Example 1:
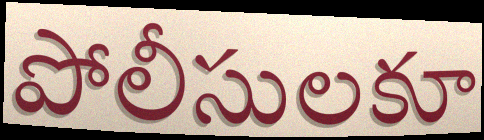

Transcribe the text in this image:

పోలీసులకూ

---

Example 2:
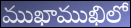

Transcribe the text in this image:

ముఖాముఖిలో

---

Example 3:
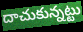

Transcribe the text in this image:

దాచుకున్నట్టు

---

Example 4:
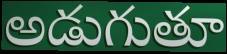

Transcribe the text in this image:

అడుగుతూ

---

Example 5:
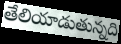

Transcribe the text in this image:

తేలియాడుతున్నది